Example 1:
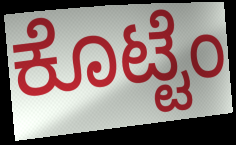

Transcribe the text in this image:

ಕೊಟ್ಟೆಂ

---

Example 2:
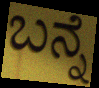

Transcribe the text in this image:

ಬನ್ನೆ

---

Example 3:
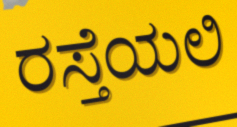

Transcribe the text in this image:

ರಸ್ತೆಯಲಿ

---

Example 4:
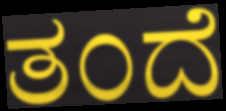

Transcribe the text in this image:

ತಂದೆ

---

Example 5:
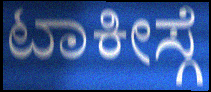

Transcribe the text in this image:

ಟಾಕೀಸ್ಗೆ